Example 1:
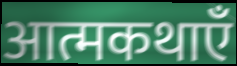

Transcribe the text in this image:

आत्मकथाएँ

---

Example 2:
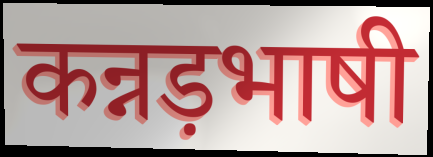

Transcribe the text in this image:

कन्नड़भाषी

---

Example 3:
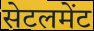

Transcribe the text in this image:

सेटलमेंट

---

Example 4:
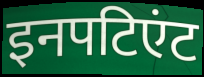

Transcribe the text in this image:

इनपटिएंट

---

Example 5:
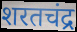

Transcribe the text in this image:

शरतचंद्र